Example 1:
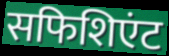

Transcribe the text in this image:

सफिशिएंट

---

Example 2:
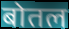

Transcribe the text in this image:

बोतल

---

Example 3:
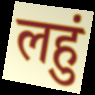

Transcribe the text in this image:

लहुं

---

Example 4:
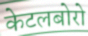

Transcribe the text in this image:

केटलबोरो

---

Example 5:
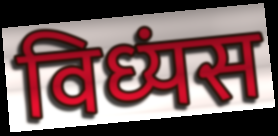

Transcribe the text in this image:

विध्यंस